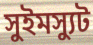
সুইমস্যুট